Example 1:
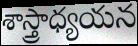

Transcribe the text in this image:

శాస్త్రాధ్యయన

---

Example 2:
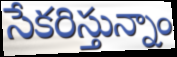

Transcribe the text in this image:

సేకరిస్తున్నాం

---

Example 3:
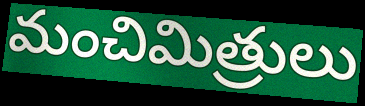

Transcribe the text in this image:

మంచిమిత్రులు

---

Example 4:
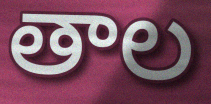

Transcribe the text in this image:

తాల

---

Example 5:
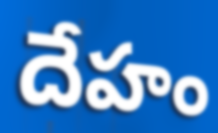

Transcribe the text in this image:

దేహం